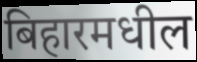
बिहारमधील